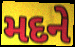
મદને